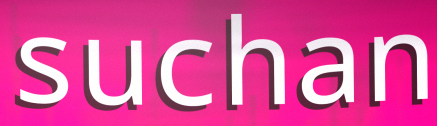
suchan